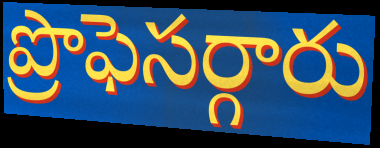
ప్రొఫెసర్గారు